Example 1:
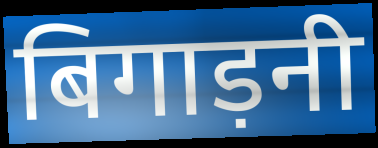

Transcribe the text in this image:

बिगाड़नी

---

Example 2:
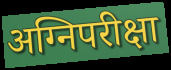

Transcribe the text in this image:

अग्निपरीक्षा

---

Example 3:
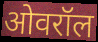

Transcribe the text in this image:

ओवरॉल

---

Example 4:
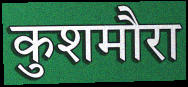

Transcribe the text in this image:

कुशमौरा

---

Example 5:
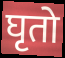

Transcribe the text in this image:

घृतो